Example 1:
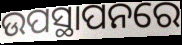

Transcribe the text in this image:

ଉପସ୍ଥାପନରେ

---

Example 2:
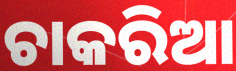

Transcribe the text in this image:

ଚାକରିଆ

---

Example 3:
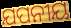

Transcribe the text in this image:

ଯପନୀୟ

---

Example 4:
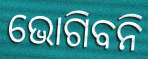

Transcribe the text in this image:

ଭୋଗିବନି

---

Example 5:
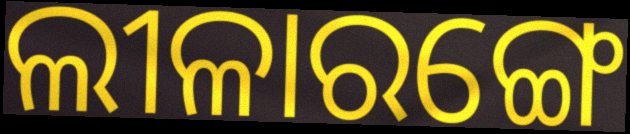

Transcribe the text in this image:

ଲୀଳାରଙ୍ଗେ